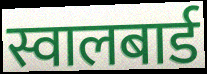
स्वालबार्ड